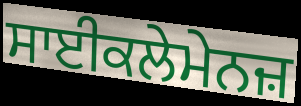
ਸਾਈਕਲੇਮੇਨਜ਼